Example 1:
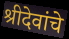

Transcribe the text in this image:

श्रीदेवांचे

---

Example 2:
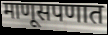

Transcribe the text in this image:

माणूसपणात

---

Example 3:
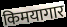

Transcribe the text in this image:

किमयागार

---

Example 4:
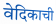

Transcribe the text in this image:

वेदिकाची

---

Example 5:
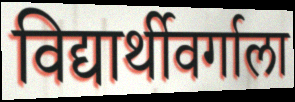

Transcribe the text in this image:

विद्यार्थीवर्गाला